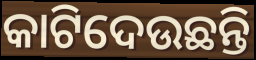
କାଟିଦେଉଛନ୍ତି